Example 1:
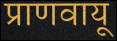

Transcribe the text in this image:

प्राणवायू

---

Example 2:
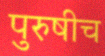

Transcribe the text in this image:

पुरुषीच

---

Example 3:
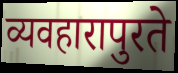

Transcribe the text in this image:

व्यवहारापुरते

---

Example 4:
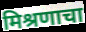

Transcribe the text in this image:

मिश्रणाचा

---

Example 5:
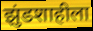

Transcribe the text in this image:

झुंडशाहीला